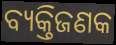
ବ୍ୟକ୍ତିଜଣକ